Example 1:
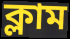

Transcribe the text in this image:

ক্লাম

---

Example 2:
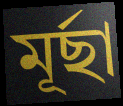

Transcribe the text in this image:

মূর্ছা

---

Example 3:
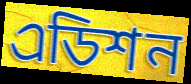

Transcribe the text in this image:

এডিশন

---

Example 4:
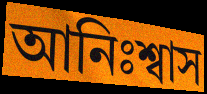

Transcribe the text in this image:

আনিঃশ্বাস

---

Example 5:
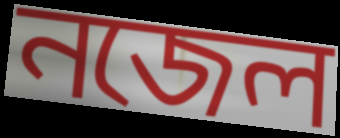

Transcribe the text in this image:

নজেল